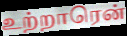
உற்றாரென்